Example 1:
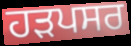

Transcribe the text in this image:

ਹੜਪਸਰ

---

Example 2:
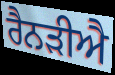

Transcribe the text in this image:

ਰੈਨੜੀਐ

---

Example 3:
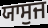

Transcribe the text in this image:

ਯਾਸੁਜ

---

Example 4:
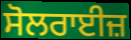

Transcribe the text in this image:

ਸੋਲਰਾਈਜ਼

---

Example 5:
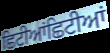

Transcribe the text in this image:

ਛਿਟੀਆਂਛਿਟੀਆਂ